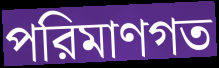
পরিমাণগত